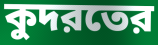
কুদরতের